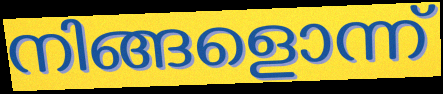
നിങ്ങളൊന്ന്